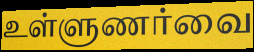
உள்ளுணர்வை